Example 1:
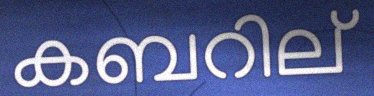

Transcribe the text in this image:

കബറില്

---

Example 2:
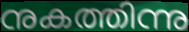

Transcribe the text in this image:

നുകത്തിന്നു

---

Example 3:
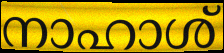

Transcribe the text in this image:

നാഹാശ്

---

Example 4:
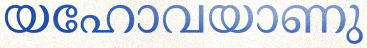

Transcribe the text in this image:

യഹോവയാണു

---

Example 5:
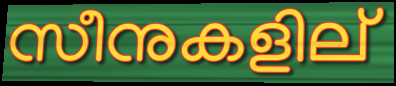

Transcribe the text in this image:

സീനുകളില്